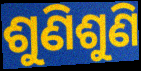
ଶୁଣିଶୁଣି